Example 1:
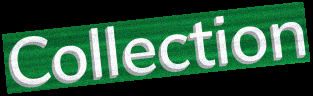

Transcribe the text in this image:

Collection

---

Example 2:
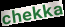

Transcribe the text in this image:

chekka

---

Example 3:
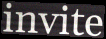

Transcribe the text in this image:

invite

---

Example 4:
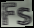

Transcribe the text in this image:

Fs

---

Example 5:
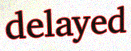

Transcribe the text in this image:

delayed